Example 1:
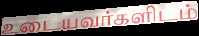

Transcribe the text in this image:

உடையவர்களிடம்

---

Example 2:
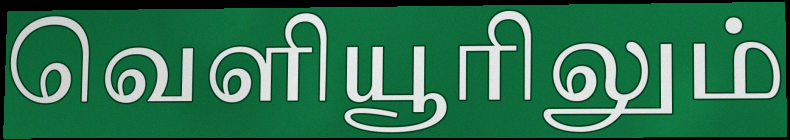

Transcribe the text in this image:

வெளியூரிலும்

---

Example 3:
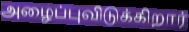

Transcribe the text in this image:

அழைப்புவிடுக்கிறார்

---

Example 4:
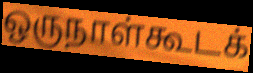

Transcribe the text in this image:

ஒருநாள்கூடக்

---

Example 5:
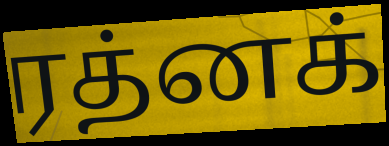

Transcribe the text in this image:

ரத்னக்